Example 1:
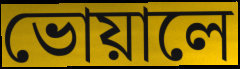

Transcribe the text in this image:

ভোয়ালে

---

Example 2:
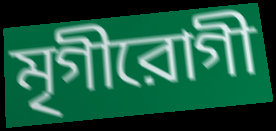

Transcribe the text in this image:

মৃগীরোগী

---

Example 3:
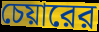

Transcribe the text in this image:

চেয়ারের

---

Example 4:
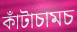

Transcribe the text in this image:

কাঁটাচামচ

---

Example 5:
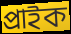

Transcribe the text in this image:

প্রাইক